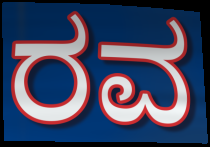
ರವ